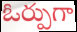
ఓర్పుగా